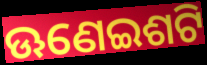
ଊଣେଇଶଟି